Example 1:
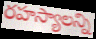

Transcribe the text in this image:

రహస్యాలన్ని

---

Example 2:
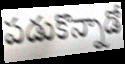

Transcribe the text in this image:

పడుకొన్నాడో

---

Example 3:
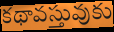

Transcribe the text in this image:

కథావస్తువుకు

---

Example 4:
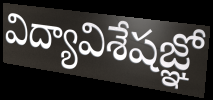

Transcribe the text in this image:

విద్యావిశేషజ్ఞో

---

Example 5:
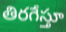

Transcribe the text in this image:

తిరగేస్తూ